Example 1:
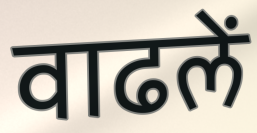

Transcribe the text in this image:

वाढलें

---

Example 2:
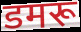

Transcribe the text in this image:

डमरू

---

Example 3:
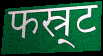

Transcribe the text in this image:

फस्र्ट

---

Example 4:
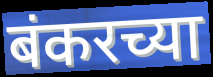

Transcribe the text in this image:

बंकरच्या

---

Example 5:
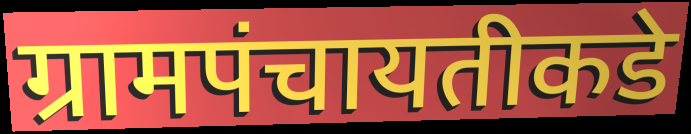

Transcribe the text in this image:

ग्रामपंचायतीकडे